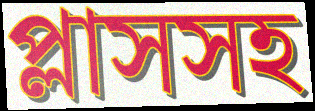
প্লাসসহ